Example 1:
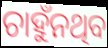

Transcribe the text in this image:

ଚାହୁଁନଥିବ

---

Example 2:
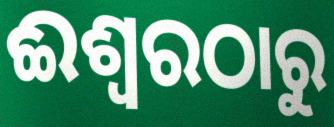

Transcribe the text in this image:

ଈଶ୍ୱରଠାରୁ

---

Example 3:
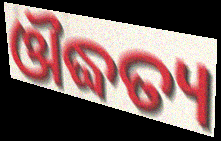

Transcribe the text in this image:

ଔଦ୍ଧତ୍ୟ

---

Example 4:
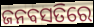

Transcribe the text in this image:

ଜନବସତିରେ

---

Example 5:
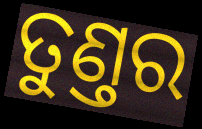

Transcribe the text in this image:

ତୁଣ୍ତର